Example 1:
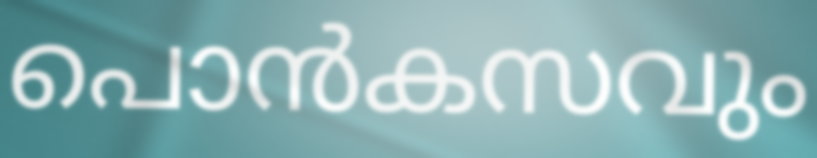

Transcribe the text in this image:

പൊൻകസവും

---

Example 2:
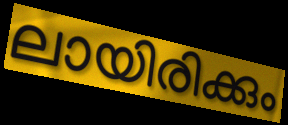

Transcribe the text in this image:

ലായിരിക്കും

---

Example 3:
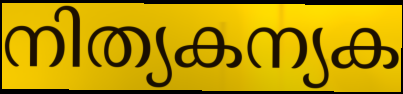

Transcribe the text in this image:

നിത്യകന്യക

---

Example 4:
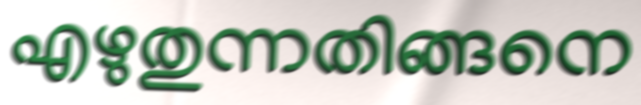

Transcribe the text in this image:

എഴുതുന്നതിങ്ങനെ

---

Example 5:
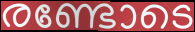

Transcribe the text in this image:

രണ്ടോടെ